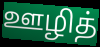
ஊழித்